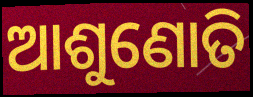
ଆଶୁଣୋତି